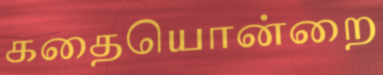
கதையொன்றை